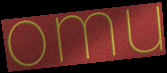
omu